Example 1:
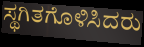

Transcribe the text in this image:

ಸ್ಥಗಿತಗೊಳಿಸಿದರು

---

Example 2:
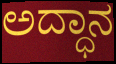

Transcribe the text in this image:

ಅದ್ಧಾನ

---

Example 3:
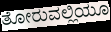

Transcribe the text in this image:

ತೋರುವಲ್ಲಿಯೂ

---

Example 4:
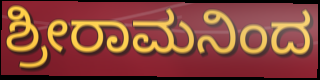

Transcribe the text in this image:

ಶ್ರೀರಾಮನಿಂದ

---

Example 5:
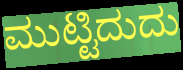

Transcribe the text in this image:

ಮುಟ್ಟಿದುದು